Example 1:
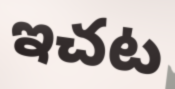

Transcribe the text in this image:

ఇచట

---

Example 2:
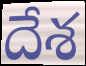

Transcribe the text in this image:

దేశ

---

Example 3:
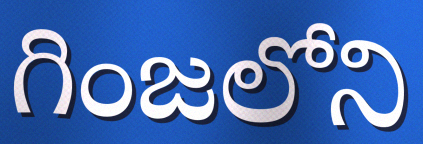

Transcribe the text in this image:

గింజలోని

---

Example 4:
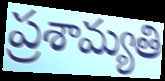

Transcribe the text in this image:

ప్రశామ్యతి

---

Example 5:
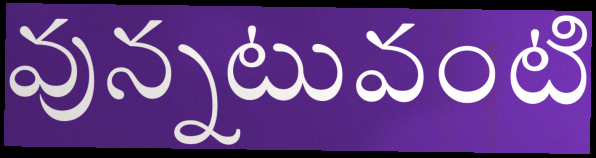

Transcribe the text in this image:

వున్నటువంటి